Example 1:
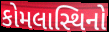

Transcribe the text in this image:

કોમલાસ્થિનો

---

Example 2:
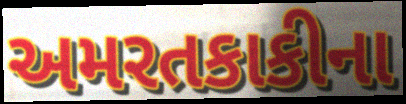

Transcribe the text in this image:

અમરતકાકીના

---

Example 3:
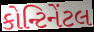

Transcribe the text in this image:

કોન્ટિનેંટલ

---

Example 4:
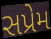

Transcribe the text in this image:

સપ્રેમ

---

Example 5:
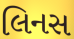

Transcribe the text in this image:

લિનસ